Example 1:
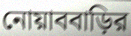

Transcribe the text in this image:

নোয়াববাড়ির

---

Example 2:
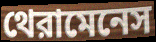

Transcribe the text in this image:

থেরামেনেস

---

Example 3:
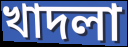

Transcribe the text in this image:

খাদলা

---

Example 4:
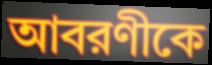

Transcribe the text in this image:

আবরণীকে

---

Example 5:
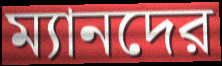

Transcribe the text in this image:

ম্যানদের